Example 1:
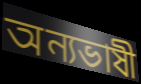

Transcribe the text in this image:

অন্যভাষী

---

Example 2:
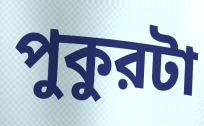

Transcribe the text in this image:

পুকুরটা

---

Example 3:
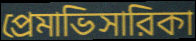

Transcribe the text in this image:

প্রেমাভিসারিকা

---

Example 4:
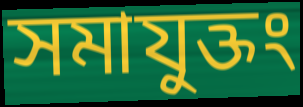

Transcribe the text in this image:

সমাযুক্তং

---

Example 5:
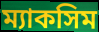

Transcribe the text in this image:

ম্যাকসিম